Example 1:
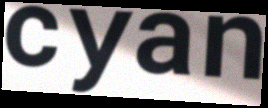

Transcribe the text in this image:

cyan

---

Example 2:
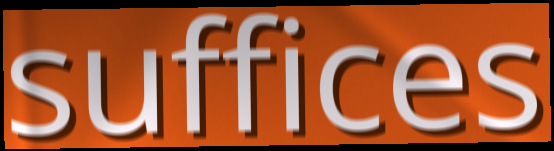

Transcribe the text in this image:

suffices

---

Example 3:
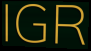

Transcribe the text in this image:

IGR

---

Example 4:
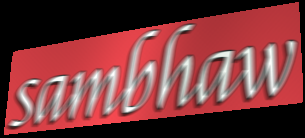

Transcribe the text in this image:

sambhaw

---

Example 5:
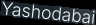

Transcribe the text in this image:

Yashodabai